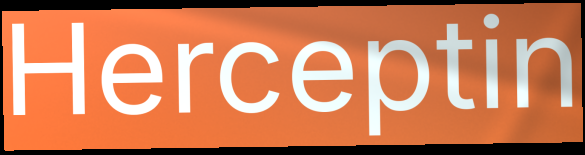
Herceptin